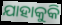
ଯାହାକୁକି